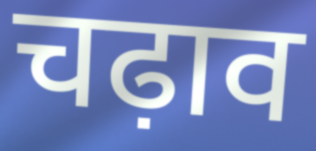
चढ़ाव